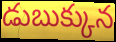
డుబుక్కున